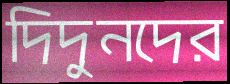
দিদুনদের